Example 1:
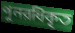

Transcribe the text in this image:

পুনরধিকৃত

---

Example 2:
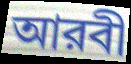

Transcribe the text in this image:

আরবী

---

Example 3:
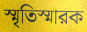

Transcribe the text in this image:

স্মৃতিস্মারক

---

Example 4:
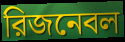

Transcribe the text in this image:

রিজনেবল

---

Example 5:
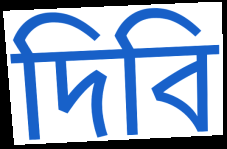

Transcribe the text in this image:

দিবি